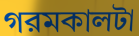
গরমকালটা